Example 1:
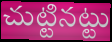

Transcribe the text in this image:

చుట్టినట్టు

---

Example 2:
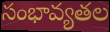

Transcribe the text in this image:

సంభావ్యతల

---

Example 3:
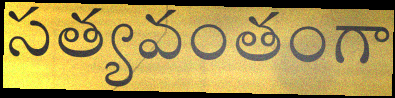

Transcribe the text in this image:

సత్యవంతంగా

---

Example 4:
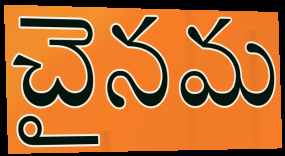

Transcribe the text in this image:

చైనమ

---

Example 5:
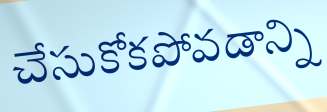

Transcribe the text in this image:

చేసుకోకపోవడాన్ని